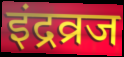
इंद्रव्रज